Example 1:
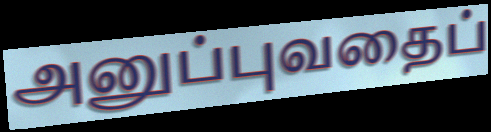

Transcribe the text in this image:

அனுப்புவதைப்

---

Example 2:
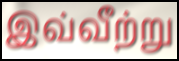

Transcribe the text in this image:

இவ்வீற்று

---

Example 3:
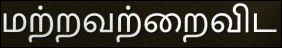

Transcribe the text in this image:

மற்றவற்றைவிட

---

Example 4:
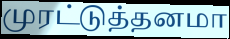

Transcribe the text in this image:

முரட்டுத்தனமா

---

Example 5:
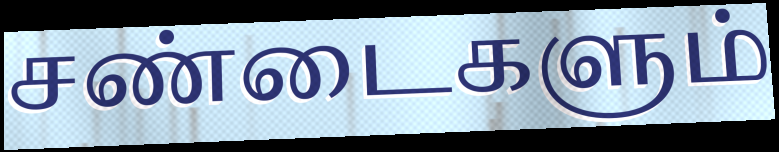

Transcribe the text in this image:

சண்டைகளும்